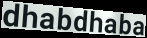
dhabdhaba